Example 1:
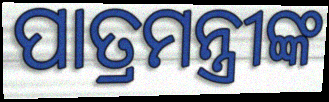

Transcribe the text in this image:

ପାତ୍ରମନ୍ତ୍ରୀଙ୍କ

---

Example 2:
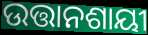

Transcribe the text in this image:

ଉତ୍ତାନଶାୟୀ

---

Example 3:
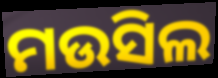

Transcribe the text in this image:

ମଉସିଲ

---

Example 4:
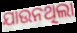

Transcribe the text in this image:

ଯାଉନଥିଲା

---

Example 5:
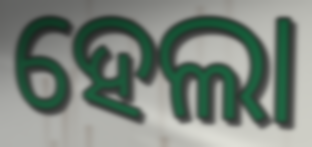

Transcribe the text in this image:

ହେଲା